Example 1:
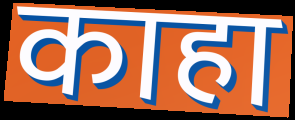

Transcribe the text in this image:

काहा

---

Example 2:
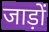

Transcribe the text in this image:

जाड़ों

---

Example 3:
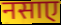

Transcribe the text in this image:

नसाए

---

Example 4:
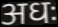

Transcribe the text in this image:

अधः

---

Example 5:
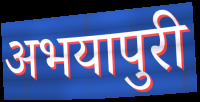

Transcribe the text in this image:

अभयापुरी